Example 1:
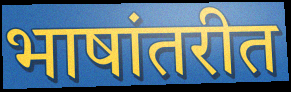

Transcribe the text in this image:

भाषांतरीत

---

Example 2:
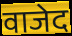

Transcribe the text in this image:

वाजेद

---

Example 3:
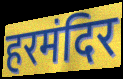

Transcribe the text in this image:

हरमंदिर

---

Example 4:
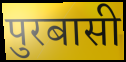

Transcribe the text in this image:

पुरबासी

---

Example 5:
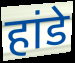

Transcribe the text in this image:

हांडे